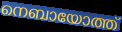
നെബായോത്ത്